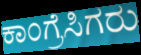
ಕಾಂಗ್ರೆಸಿಗರು